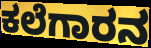
ಕಲೆಗಾರನ